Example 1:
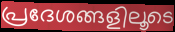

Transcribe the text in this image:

പ്രദേശങ്ങളിലൂടെ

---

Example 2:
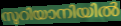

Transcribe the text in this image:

സുറിയാനിയിൽ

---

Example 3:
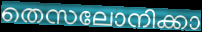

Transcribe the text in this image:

തെസലോനിക്കാ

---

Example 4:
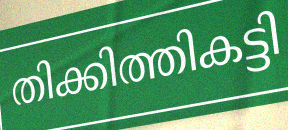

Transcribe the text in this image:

തിക്കിത്തികട്ടി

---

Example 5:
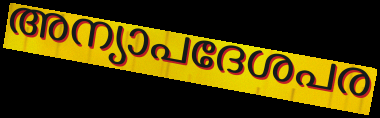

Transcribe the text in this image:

അന്യാപദേശപര